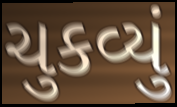
ચુકવ્યું